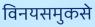
विनयसमुकसे